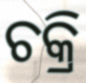
ଚକ୍ରି